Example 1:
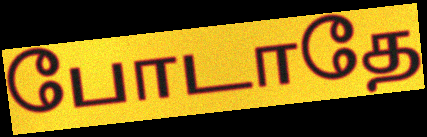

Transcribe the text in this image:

போடாதே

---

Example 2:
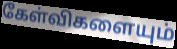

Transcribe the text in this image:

கேள்விகளையும்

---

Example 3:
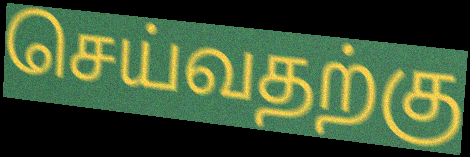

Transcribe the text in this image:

செய்வதற்கு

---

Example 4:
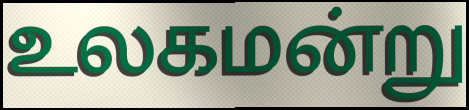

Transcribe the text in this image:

உலகமன்று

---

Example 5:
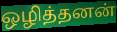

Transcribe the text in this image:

ஒழித்தனன்